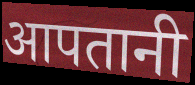
आपतानी